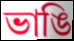
ভাঙি